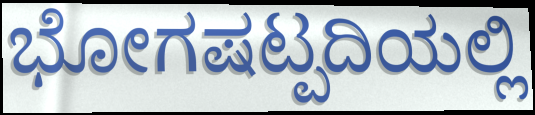
ಭೋಗಷಟ್ಪದಿಯಲ್ಲಿ